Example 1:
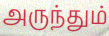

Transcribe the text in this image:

அருந்தும்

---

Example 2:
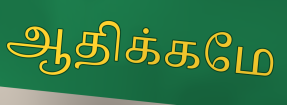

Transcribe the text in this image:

ஆதிக்கமே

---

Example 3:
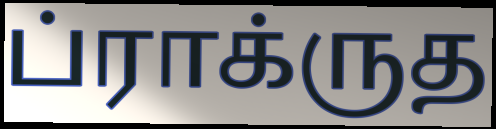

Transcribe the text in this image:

ப்ராக்ருத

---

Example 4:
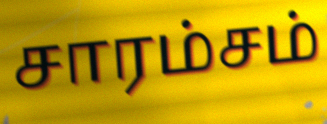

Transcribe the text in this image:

சாரம்சம்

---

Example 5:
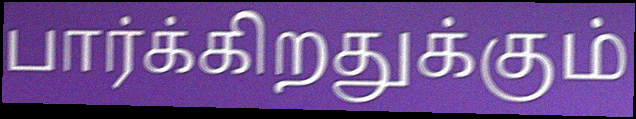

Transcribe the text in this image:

பார்க்கிறதுக்கும்